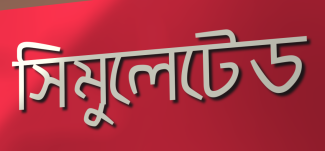
সিমুলেটেড